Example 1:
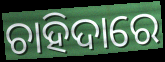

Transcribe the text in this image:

ଚାହିଦାରେ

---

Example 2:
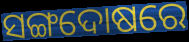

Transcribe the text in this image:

ସଙ୍ଗଦୋଷରେ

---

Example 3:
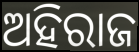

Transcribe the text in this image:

ଅହିରାଜ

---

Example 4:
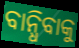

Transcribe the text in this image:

ବାନ୍ଧିବାକୁ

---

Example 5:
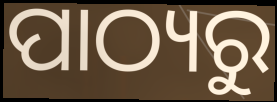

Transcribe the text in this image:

ପାଠ୍ୟରୁ